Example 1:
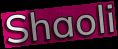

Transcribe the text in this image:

Shaoli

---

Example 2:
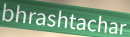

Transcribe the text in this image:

bhrashtachar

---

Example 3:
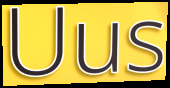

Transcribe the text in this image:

Uus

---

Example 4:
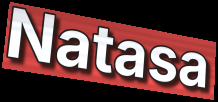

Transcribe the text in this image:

Natasa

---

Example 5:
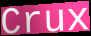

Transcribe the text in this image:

Crux